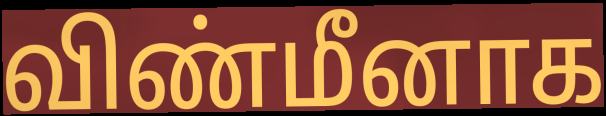
விண்மீனாக